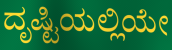
ದೃಷ್ಟಿಯಲ್ಲಿಯೇ